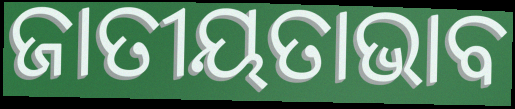
ଜାତୀୟତାଭାବ